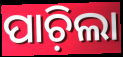
ପାଚ଼ିଲା